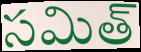
సమిత్